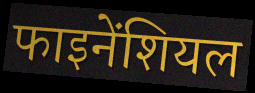
फाइनेंशियल